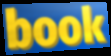
book